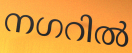
നഗറിൽ